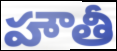
హౌతీ